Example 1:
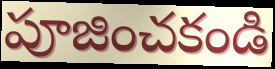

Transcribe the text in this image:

పూజించకండి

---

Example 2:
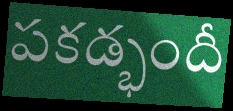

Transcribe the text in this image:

పకడ్భందీ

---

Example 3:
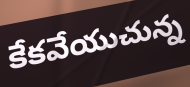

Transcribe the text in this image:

కేకవేయుచున్న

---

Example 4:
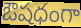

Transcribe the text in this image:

ఔషధంగా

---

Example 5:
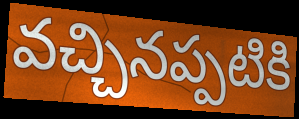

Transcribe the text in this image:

వచ్చినప్పటికి